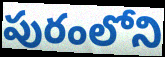
పురంలోని